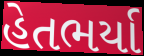
હેતભર્યા